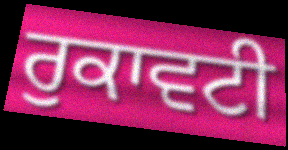
ਰੁਕਾਵਟੀ